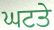
ਘਟਤੇ